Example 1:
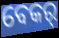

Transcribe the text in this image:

ବେକର୍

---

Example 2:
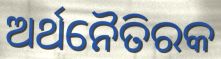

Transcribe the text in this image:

ଅର୍ଥନୈତିରକ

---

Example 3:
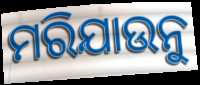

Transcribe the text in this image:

ମରିଯାଉନୁ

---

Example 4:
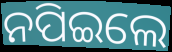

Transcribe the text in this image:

ନପିଇଲେ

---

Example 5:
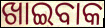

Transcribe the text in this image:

ଖାଇବାକ